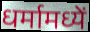
धर्मामध्यें